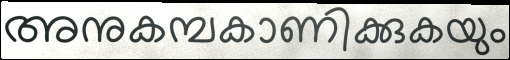
അനുകമ്പകാണിക്കുകയും